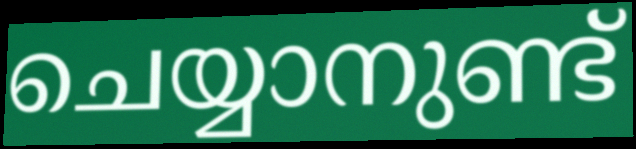
ചെയ്യാനുണ്ട്